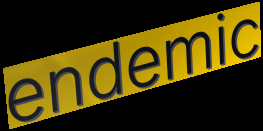
endemic